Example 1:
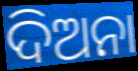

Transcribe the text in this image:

ଦିଅନା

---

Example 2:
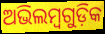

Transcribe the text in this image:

ଅଭିଲମ୍ବଗୁଡ଼ିକ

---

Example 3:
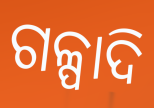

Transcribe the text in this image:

ଗଳ୍ପାଦି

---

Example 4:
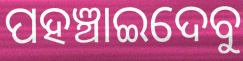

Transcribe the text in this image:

ପହଞ୍ଚାଇଦେବୁ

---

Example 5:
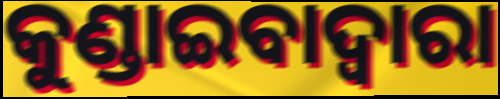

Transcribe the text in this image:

କୁଣ୍ଡାଇବାଦ୍ୱାରା